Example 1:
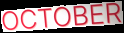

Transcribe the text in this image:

OCTOBER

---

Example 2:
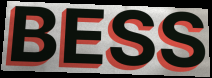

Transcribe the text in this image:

BESS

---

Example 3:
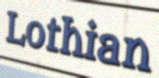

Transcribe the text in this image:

Lothian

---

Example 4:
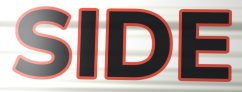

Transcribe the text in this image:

SIDE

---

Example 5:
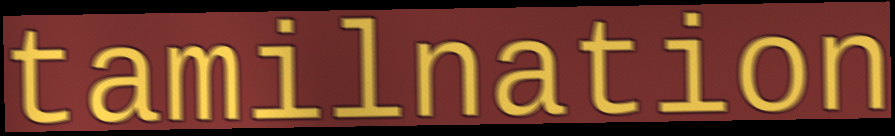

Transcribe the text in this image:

tamilnation